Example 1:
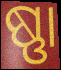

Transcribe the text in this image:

ଷ୍ଣା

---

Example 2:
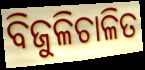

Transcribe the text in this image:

ବିଜୁଳିଚାଳିତ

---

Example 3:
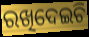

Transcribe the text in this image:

ରଖିଦେଇଚି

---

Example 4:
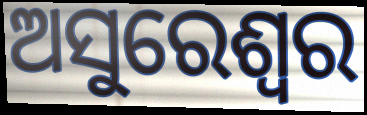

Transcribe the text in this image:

ଅସୁରେଶ୍ଵର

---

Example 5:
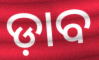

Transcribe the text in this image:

ଡ଼ାବ